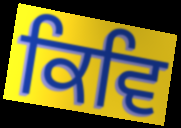
ਕਿਵਿ